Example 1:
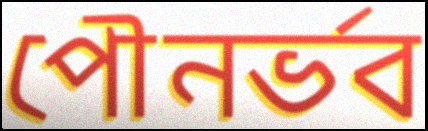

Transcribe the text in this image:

পৌনর্ভব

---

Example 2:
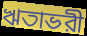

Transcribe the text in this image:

ঋতাভরী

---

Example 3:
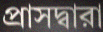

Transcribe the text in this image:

প্রাসদ্বারা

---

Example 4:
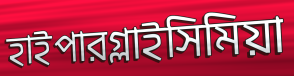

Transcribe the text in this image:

হাইপারগ্লাইসিমিয়া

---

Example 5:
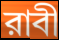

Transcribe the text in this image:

রাবী